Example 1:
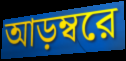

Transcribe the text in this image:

আড়ম্বরে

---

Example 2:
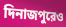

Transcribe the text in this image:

দিনাজপুরেও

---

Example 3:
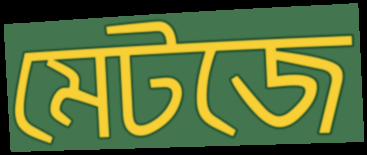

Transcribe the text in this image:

মেটজে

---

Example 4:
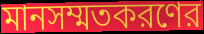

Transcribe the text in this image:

মানসম্মতকরণের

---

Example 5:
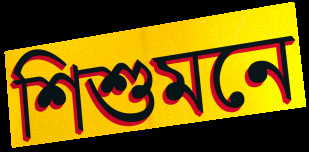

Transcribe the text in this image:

শিশুমনে